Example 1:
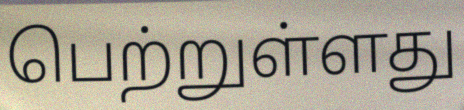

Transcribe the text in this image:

பெற்றுள்ளது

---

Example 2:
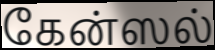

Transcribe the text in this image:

கேன்ஸல்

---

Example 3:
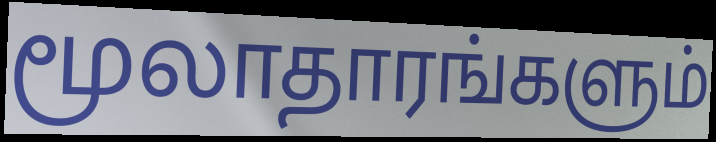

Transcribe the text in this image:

மூலாதாரங்களும்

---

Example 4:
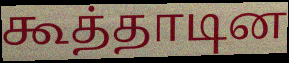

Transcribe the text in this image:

கூத்தாடின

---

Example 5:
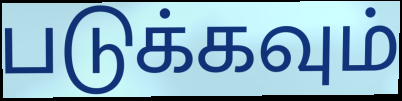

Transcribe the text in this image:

படுக்கவும்